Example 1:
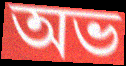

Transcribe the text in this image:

অভ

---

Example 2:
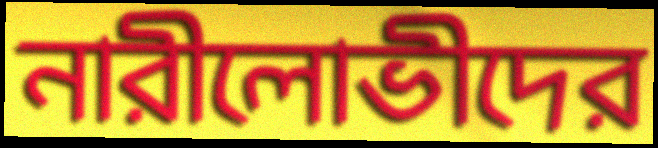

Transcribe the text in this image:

নারীলোভীদের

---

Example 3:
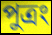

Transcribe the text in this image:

পুত্রং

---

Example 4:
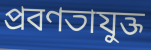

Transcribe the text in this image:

প্রবণতাযুক্ত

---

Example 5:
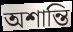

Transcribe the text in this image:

অশান্তি